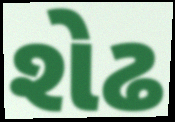
શેઢ